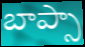
బాప్సా